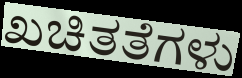
ಖಚಿತತೆಗಳು